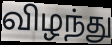
விழந்து